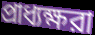
প্রাধ্যক্ষরা